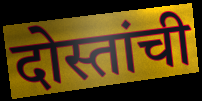
दोस्तांची